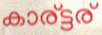
കാര്ട്ടര്